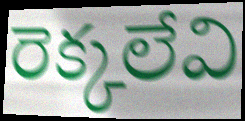
రెక్కలేవి